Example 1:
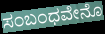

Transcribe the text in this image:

ಸಂಬಂಧವೇನೊ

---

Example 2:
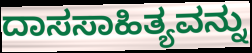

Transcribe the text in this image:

ದಾಸಸಾಹಿತ್ಯವನ್ನು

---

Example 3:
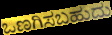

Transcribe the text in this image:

ಒಣಗಿಸಬಹುದು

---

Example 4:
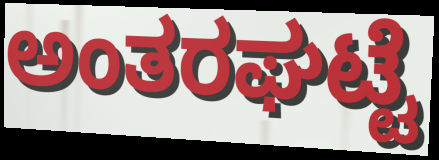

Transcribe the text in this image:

ಅಂತರಘಟ್ಟೆ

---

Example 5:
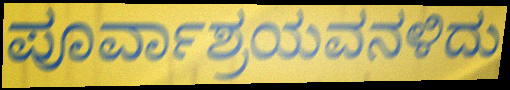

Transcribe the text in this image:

ಪೂರ್ವಾಶ್ರಯವನಳಿದು